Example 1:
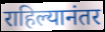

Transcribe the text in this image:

राहिल्यानंतर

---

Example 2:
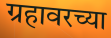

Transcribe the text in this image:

ग्रहावरच्या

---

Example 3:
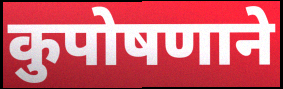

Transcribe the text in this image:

कुपोषणाने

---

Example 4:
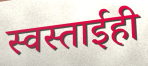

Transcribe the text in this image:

स्वस्ताईही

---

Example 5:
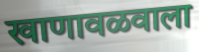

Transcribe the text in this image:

खाणावळवाला